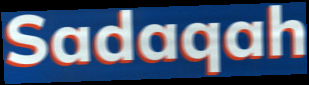
Sadaqah